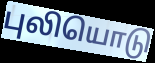
புலியொடு